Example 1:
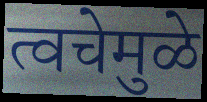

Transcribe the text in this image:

त्वचेमुळे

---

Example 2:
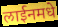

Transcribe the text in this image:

लाईनमधे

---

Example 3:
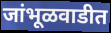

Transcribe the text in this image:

जांभूळवाडीत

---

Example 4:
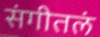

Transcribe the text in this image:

संगीतलं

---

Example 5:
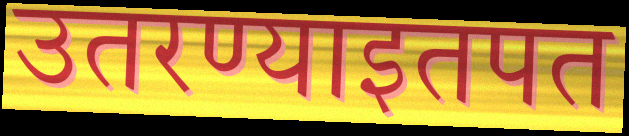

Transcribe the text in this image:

उतरण्याइतपत